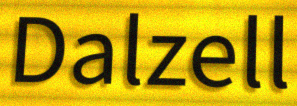
Dalzell